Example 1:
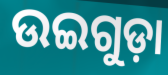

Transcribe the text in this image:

ଉଇଗୁଡ଼ା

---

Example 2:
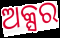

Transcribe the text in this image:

ଅକ୍ସର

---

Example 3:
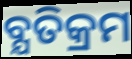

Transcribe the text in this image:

ବ୍ଯତିକ୍ରମ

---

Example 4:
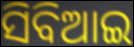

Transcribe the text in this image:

ସିବିଆଇ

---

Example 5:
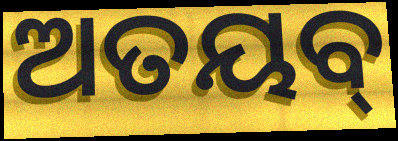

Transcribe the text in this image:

ଅତୟବ୍